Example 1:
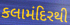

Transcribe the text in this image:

કલામંદિરથી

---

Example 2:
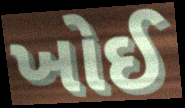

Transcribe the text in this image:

ખોઈ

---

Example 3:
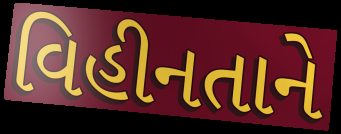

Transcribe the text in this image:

વિહીનતાને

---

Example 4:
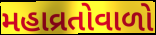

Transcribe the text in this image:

મહાવ્રતોવાળો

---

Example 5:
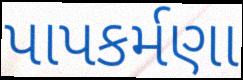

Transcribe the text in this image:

પાપકર્મણા